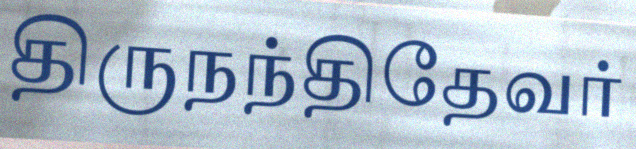
திருநந்திதேவர்